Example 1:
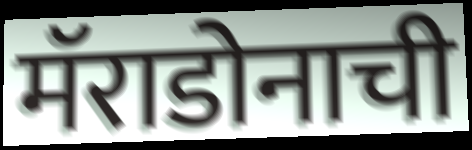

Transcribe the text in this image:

मॅराडोनाची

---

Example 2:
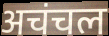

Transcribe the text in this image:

अचंचल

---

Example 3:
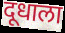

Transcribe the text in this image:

दूधाला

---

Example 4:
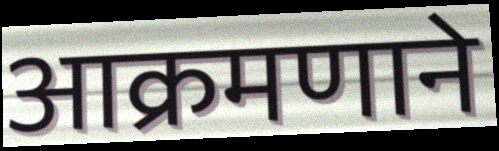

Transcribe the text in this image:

आक्रमणाने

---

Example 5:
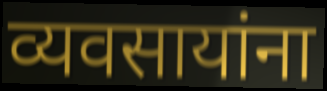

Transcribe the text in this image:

व्यवसायांना